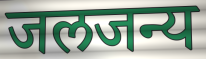
जलजन्य